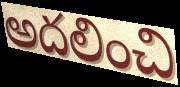
అదలించి